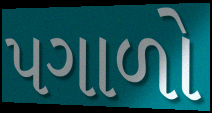
પગાળો